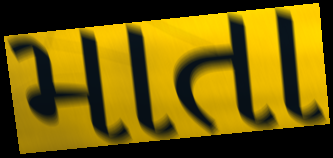
માતા